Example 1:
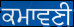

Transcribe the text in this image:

ਕਮਾਵਣੀ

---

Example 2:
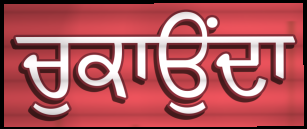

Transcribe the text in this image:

ਚੁਕਾਉਂਦਾ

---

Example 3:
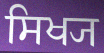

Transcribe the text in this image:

ਸਿਖ੍ਯ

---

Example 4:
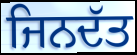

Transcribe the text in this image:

ਜਿਨਦੱਤ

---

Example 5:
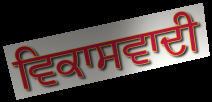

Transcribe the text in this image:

ਵਿਕਾਸਵਾਦੀ